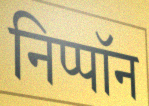
निप्पॉन